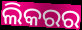
ଲିକରର